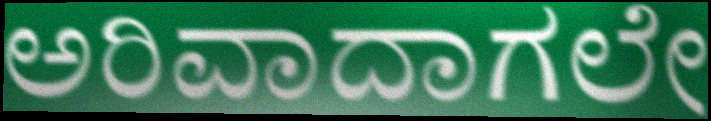
ಅರಿವಾದಾಗಲೇ